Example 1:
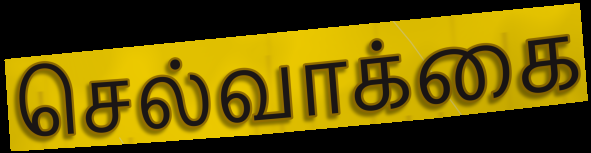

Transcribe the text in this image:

செல்வாக்கை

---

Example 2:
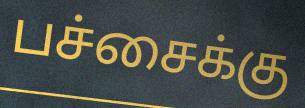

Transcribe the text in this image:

பச்சைக்கு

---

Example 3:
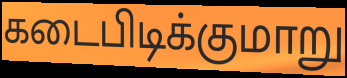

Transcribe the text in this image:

கடைபிடிக்குமாறு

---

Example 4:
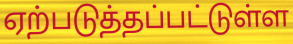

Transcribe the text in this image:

ஏற்படுத்தப்பட்டுள்ள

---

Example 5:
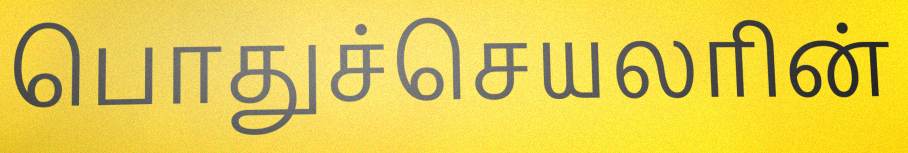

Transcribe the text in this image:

பொதுச்செயலரின்